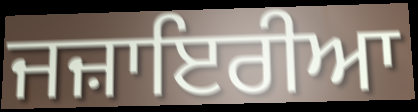
ਜਜ਼ਾਇਰੀਆ